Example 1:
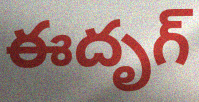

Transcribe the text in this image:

ఈదృగ్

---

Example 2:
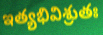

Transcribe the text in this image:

ఇత్యభివిశ్రుతః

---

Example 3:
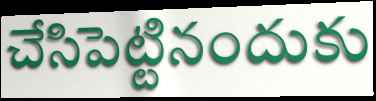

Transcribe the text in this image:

చేసిపెట్టినందుకు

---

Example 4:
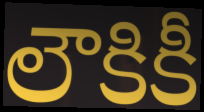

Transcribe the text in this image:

లౌకికీ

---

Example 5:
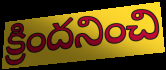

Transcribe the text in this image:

క్రిందనించి